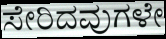
ಸೇರಿದವುಗಳೇ